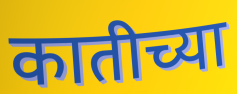
कातीच्या